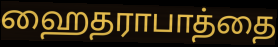
ஹைதராபாத்தை